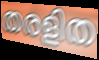
തരളിത